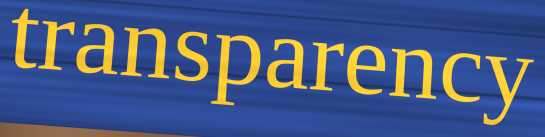
transparency